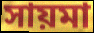
সায়মা